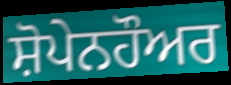
ਸ਼ੋਪੇਨਹੌਅਰ